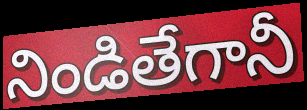
నిండితేగానీ